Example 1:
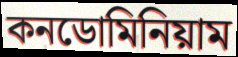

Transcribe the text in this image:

কনডোমিনিয়াম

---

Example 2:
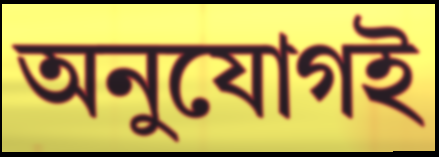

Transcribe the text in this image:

অনুযোগই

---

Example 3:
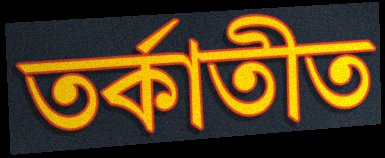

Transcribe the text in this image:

তর্কাতীত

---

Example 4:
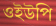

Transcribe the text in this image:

ওইউপি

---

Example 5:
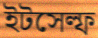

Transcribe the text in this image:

ইটসেল্ফ